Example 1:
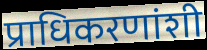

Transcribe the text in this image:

प्राधिकरणांशी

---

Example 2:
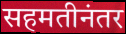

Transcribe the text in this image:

सहमतीनंतर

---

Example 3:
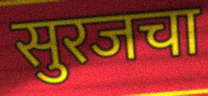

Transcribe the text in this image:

सुरजचा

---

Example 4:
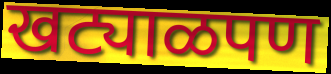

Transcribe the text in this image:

खट्याळपण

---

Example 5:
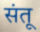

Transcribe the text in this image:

संतू